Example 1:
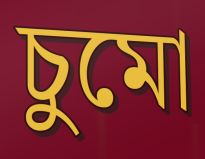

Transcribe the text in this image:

চুমো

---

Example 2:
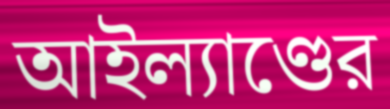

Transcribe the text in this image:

আইল্যাণ্ডের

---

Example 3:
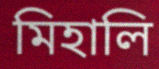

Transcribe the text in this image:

মিহালি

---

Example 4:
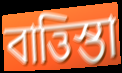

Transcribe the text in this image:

বাত্তিস্তা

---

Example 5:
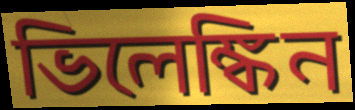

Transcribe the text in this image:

ভিলেঙ্কিন